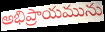
అభిప్రాయమును